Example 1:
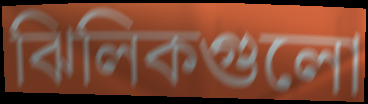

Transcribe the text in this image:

ঝিলিকগুলো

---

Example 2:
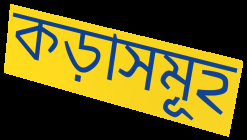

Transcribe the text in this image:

কড়াসমূহ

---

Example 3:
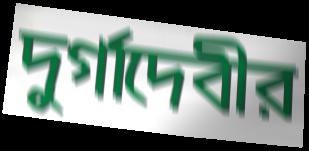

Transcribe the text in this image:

দুর্গাদেবীর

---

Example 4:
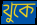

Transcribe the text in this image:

থুকে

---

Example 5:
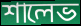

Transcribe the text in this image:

শালেভ